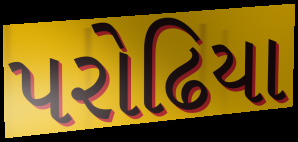
પરોઢિયા